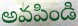
అవపిండి